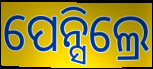
ପେନ୍ସିଲ୍ରେ